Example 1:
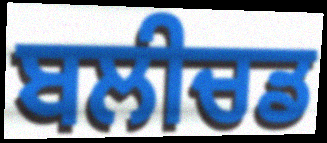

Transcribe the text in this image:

ਬਲੀਚਡ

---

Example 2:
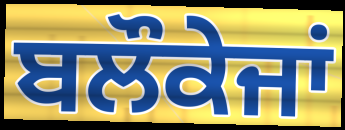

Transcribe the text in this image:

ਬਲੌਕੇਜਾਂ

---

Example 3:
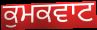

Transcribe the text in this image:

ਕੁਮਕਵਾਟ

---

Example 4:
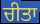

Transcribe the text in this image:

ਚੀਤਾ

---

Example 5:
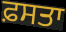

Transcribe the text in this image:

ਫ਼ਸਤਾ